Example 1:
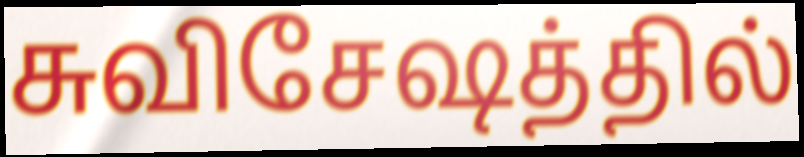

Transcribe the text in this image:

சுவிசேஷத்தில்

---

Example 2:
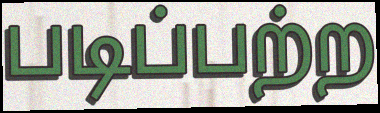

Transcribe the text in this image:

படிப்பற்ற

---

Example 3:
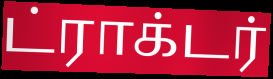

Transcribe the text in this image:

ட்ராக்டர்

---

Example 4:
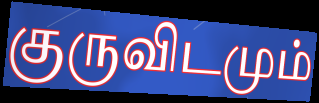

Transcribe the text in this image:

குருவிடமும்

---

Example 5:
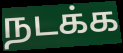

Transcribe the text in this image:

நடக்க